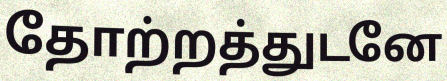
தோற்றத்துடனே